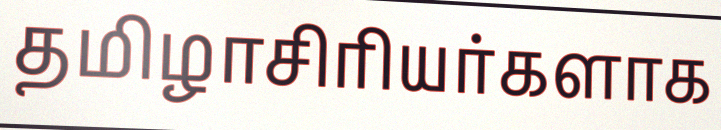
தமிழாசிரியர்களாக